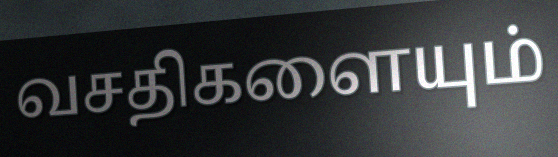
வசதிகளையும்